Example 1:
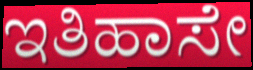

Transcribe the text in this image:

ಇತಿಹಾಸೇ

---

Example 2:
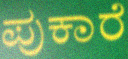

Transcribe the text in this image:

ಪುಕಾರೆ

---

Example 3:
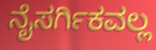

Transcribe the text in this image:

ನೈಸರ್ಗಿಕವಲ್ಲ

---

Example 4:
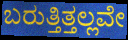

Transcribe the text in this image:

ಬರುತ್ತಿತ್ತಲ್ಲವೇ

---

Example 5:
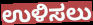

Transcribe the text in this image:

ಉಳಿಸಲು